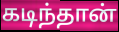
கடிந்தான்